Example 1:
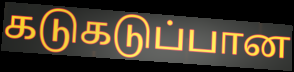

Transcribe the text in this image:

கடுகடுப்பான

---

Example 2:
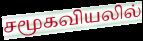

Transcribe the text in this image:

சமூகவியலில்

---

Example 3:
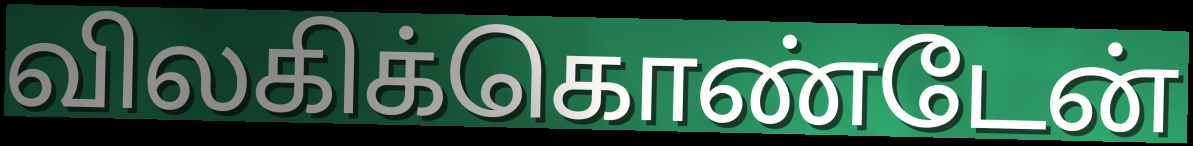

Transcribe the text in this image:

விலகிக்கொண்டேன்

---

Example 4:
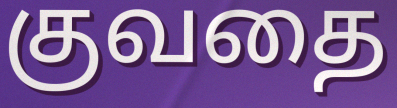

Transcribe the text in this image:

குவதை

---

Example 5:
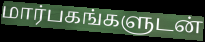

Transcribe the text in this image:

மார்பகங்களுடன்